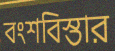
বংশবিস্তার